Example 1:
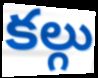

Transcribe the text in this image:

కల్గు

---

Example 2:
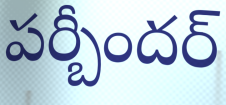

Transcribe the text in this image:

పర్బీందర్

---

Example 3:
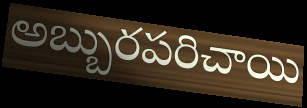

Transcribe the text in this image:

అబ్బురపరిచాయి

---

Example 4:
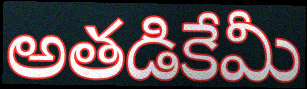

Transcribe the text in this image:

అతడికేమీ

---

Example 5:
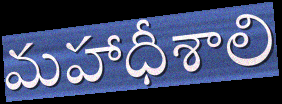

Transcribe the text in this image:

మహాధీశాలి